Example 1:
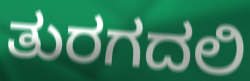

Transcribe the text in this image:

ತುರಗದಲಿ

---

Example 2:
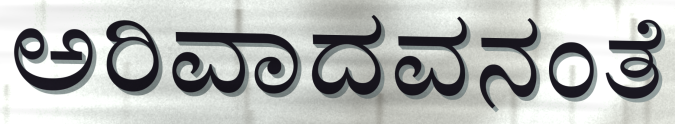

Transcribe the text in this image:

ಅರಿವಾದವನಂತೆ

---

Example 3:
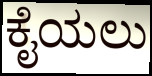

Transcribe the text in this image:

ಕೈಯಲು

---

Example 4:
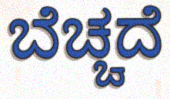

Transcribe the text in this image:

ಬೆಚ್ಚದೆ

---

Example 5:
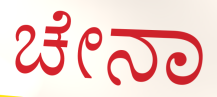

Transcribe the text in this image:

ಚೇನಾ